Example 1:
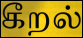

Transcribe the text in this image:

கீறல்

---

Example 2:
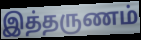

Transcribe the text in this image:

இத்தருணம்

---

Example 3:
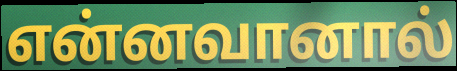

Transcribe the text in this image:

என்னவானால்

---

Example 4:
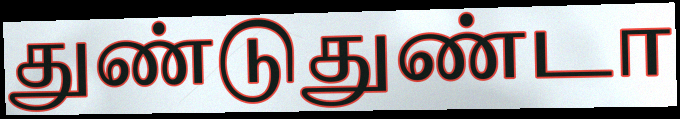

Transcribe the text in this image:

துண்டுதுண்டா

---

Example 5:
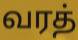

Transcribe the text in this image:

வரத்